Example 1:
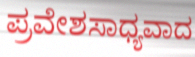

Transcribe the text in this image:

ಪ್ರವೇಶಸಾಧ್ಯವಾದ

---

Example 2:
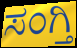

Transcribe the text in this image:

ಸಂಗ್ತಿ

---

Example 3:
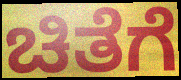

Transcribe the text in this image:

ಚಿತೆಗೆ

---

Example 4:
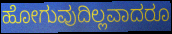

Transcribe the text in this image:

ಹೋಗುವುದಿಲ್ಲವಾದರೂ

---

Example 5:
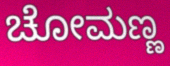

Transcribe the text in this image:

ಚೋಮಣ್ಣ